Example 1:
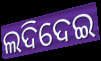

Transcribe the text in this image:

ଲଦିଦେଇ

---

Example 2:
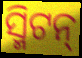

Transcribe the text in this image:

ସ୍ମିଟନ୍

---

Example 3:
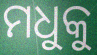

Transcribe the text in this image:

ମଧୁକୁ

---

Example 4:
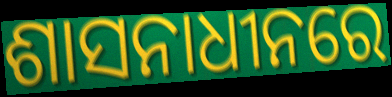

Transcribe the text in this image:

ଶାସନାଧୀନରେ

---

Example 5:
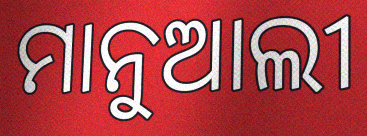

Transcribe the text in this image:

ମାନୁଆଲୀ